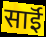
साईॅ